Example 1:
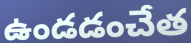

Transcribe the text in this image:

ఉండడంచేత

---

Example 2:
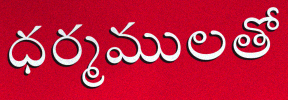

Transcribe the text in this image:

ధర్మములతో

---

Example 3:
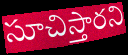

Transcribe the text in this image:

సూచిస్తారని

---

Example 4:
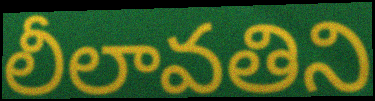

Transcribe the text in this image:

లీలావతిని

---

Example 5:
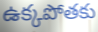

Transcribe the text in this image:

ఉక్కపోతకు